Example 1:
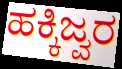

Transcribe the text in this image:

ಹಕ್ಕಿಜ್ವರ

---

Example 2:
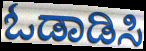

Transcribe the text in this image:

ಓಡಾಡಿಸಿ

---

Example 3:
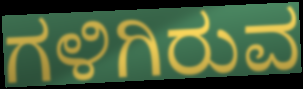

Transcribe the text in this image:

ಗಳಿಗಿರುವ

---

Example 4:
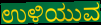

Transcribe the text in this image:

ಉಳಿಯುವ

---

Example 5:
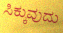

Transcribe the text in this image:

ಸಿಕ್ಕುವುದು